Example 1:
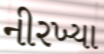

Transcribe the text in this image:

નીરખ્યા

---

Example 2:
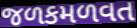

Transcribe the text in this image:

જળકમળવત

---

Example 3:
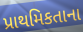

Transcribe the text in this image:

પ્રાથમિકતાના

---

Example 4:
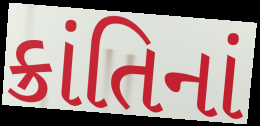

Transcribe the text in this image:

ક્રાંતિનાં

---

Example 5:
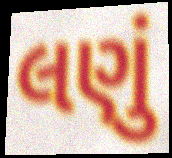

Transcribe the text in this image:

લણું